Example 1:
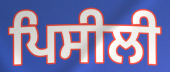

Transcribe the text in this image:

ਪਿਸੀਲੀ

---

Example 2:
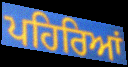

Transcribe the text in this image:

ਪਹਿਰਿਆਂ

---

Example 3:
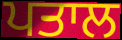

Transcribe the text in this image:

ਪਤਾਲ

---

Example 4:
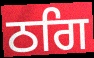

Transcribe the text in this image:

ਠਗਿ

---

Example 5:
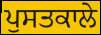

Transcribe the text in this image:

ਪੁਸਤਕਾਲੇ